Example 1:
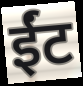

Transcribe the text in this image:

ईंट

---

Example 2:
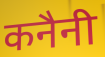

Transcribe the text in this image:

कनैनी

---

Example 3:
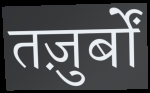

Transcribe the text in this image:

तज़ुर्बों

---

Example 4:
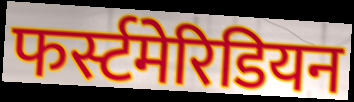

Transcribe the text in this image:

फर्स्टमेरिडियन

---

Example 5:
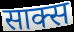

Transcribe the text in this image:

साक्स